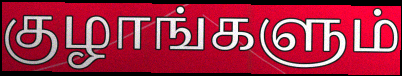
குழாங்களும்